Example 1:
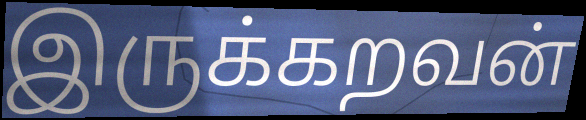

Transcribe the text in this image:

இருக்கறவன்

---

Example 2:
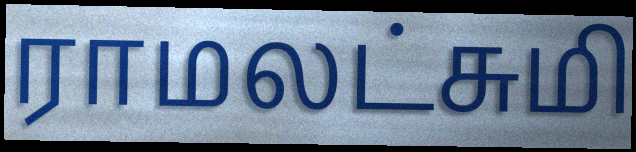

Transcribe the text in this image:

ராமலட்சுமி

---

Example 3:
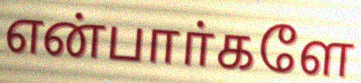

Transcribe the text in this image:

என்பார்களே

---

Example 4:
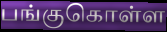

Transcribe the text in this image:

பங்குகொள்ள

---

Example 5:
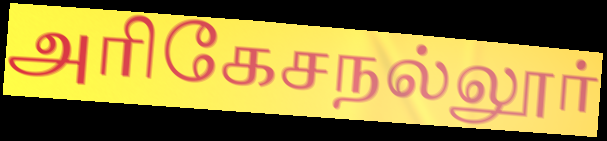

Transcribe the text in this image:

அரிகேசநல்லூர்